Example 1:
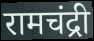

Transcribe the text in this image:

रामचंद्री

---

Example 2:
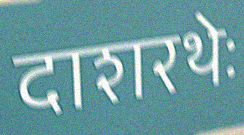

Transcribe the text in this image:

दाशरथेः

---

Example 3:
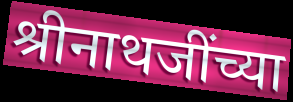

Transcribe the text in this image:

श्रीनाथजींच्या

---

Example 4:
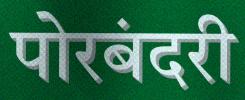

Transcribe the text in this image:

पोरबंदरी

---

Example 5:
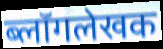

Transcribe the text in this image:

ब्लॉगलेखक